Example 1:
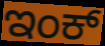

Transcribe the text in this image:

ಇಂಕ್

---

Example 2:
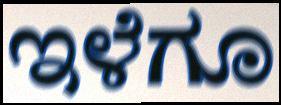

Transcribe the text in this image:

ಇಳೆಗೂ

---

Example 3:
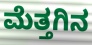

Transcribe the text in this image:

ಮೆತ್ತಗಿನ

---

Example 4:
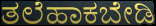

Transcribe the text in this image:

ತಲೆಹಾಕಬೇಡಿ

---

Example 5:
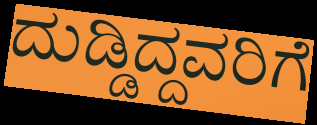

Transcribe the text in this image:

ದುಡ್ಡಿದ್ದವರಿಗೆ